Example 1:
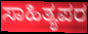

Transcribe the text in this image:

ಸಾಹಿತ್ಯಪರ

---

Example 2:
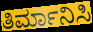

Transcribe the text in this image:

ತಿರ್ಮಾನಿಸಿ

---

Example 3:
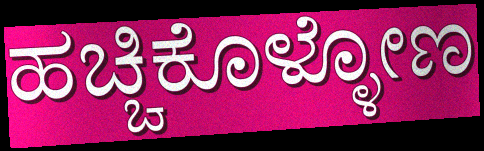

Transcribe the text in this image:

ಹಚ್ಚಿಕೊಳ್ಳೋಣ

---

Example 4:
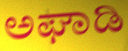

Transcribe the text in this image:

ಅಘಾಡಿ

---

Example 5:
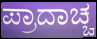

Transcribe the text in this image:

ಪ್ರಾದಾಚ್ಚ